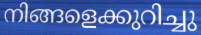
നിങ്ങളെക്കുറിച്ചു